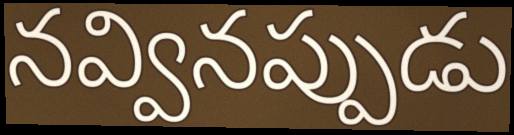
నవ్వినప్పుడు